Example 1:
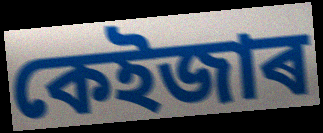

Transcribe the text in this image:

কেইজাৰ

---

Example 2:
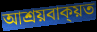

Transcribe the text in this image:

আশ্ৰয়বাক্য়ত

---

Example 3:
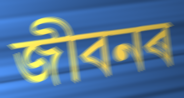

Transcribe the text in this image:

জীবনৰ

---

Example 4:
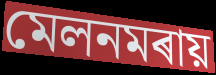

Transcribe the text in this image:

মেলনমৰায়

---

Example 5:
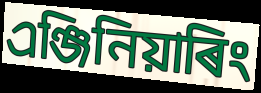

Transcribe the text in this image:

এঞ্জিনিয়াৰিং